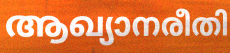
ആഖ്യാനരീതി